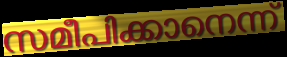
സമീപിക്കാനെന്ന്